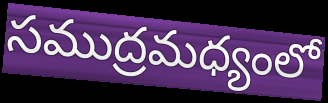
సముద్రమధ్యంలో